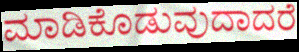
ಮಾಡಿಕೊಡುವುದಾದರೆ